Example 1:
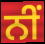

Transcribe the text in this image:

ਨੀਂ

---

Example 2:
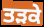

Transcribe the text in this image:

ਤੜਕੇ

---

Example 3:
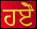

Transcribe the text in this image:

ਹਏੋ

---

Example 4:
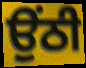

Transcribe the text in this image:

ਉਂਠੀ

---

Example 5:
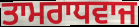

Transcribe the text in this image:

ਤਾਮਰਾਧਵਾਜ